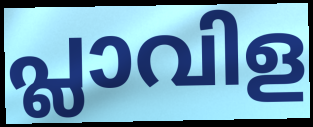
പ്ലാവിള